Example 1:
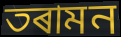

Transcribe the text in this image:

তৰামন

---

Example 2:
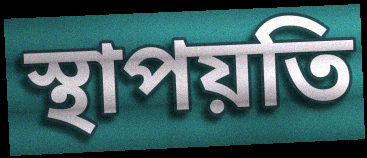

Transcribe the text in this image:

স্থাপয়তি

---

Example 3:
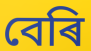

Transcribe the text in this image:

বেৰি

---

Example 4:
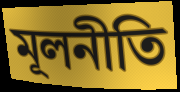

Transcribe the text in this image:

মূলনীতি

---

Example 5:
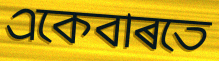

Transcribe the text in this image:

একেবাৰতে